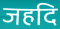
जहदि